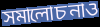
সমালোচনাও